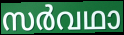
സർവഥാ